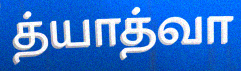
த்யாத்வா